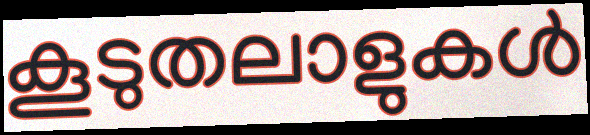
കൂടുതലാളുകൾ